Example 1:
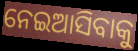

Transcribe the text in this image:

ନେଇଆସିବାକୁ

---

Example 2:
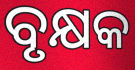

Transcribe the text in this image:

ବୃକ୍ଷକ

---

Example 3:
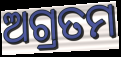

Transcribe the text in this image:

ଅଗ୍ରତମ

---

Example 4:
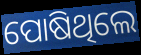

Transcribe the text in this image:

ପୋଷିଥିଲେ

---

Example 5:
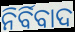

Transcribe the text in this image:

ନିର୍ବିବାଦ